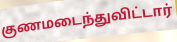
குணமடைந்துவிட்டார்